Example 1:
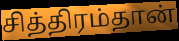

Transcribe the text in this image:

சித்திரம்தான்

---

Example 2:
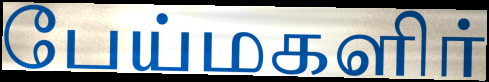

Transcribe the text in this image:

பேய்மகளிர்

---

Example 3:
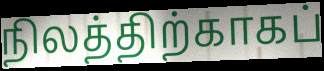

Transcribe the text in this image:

நிலத்திற்காகப்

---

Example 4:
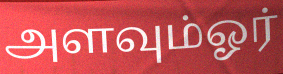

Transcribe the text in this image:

அளவும்ஓர்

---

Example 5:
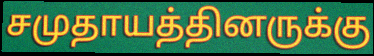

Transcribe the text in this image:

சமுதாயத்தினருக்கு